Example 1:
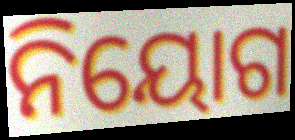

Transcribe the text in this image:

ନିୟୋଗ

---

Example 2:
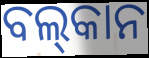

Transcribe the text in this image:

ବଲ୍‌କାନ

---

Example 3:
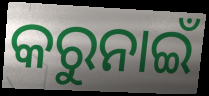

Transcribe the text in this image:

କରୁନାଇଁ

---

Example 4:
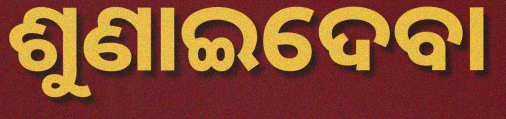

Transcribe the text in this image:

ଶୁଣାଇଦେବା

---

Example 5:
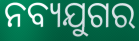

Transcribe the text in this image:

ନବ୍ୟଯୁଗର